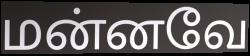
மன்னவே